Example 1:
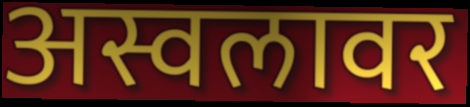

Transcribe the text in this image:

अस्वलावर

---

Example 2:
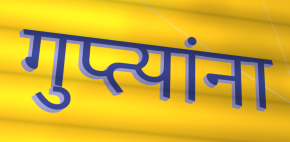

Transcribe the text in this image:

गुप्त्यांना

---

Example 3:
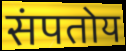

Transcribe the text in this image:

संपतोय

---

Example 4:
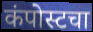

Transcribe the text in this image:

कंपोस्टचा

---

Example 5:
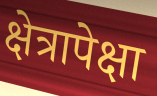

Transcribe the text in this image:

क्षेत्रापेक्षा